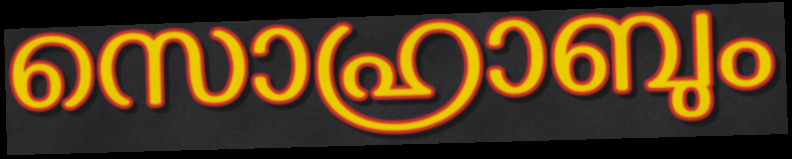
സൊഹ്രാബും